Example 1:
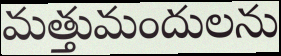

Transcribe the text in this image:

మత్తుమందులను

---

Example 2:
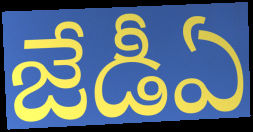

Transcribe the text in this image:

జేడీఏ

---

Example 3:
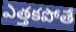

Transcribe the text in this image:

ఎత్తకపోతే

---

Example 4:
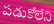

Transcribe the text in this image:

పడుకోలేని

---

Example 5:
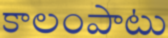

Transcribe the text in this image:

కాలంపాటు